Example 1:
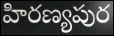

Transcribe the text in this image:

హిరణ్యపుర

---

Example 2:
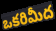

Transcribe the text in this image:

ఒకరిమీద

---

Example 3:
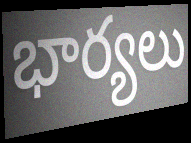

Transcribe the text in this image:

భార్యలు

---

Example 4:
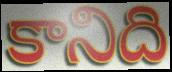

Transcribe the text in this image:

కానిది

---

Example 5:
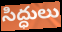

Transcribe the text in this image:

సిద్ధులు